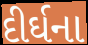
દીર્ઘના